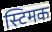
स्टिमक